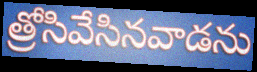
త్రోసివేసినవాడను